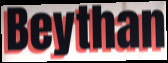
Beythan